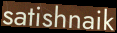
satishnaik